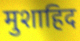
मुशाहिद